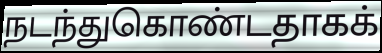
நடந்துகொண்டதாகக்